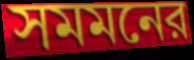
সমমনের